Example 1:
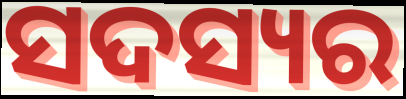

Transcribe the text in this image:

ସଦସ୍ୟର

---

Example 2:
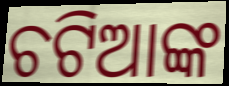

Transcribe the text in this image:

ଚଟିଆଙ୍କ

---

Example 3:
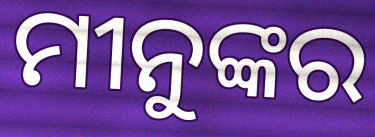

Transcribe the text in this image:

ମୀନୁଙ୍କର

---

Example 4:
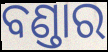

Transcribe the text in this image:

ବଣ୍ଡାର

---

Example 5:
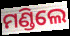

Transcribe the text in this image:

ମଣ୍ଡିଲେ